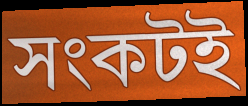
সংকটই